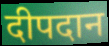
दीपदान